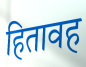
हितावह